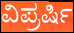
ವಿಪ್ರರ್ಷಿ